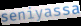
seniyassa